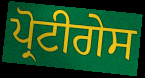
ਪ੍ਰੋਟੀਗੇਸ